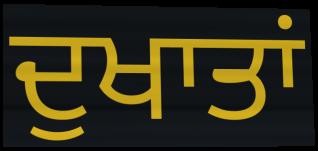
ਦੁਖਾਤਾਂ